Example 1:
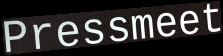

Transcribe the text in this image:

Pressmeet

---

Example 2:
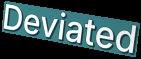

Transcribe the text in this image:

Deviated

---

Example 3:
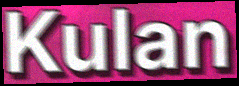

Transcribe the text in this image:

Kulan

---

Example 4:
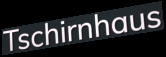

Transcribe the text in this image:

Tschirnhaus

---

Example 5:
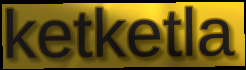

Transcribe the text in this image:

ketketla